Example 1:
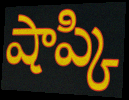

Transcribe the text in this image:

షాప్కి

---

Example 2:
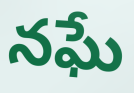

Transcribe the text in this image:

నఘే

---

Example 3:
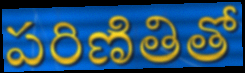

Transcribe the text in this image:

పరిణితితో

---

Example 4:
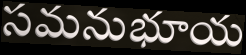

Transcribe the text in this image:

సమనుభూయ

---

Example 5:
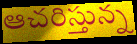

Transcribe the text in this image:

ఆచరిస్తున్న